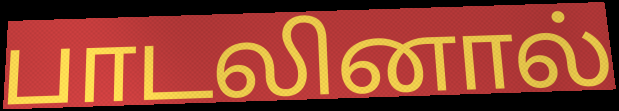
பாடலினால்